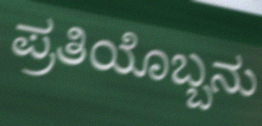
ಪ್ರತಿಯೊಬ್ಬನು